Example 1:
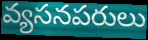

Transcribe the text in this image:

వ్యసనపరులు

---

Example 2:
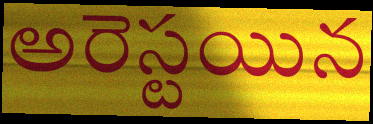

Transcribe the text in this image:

అరెస్టయిన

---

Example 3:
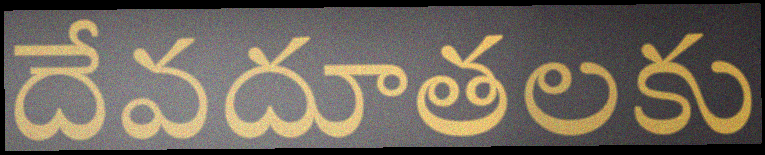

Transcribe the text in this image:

దేవదూతలకు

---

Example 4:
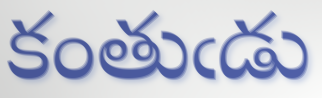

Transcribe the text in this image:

కంతుఁడు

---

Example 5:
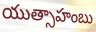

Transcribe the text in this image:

యుత్సాహంబు